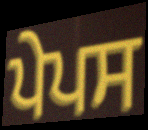
ਪੇਪਸ